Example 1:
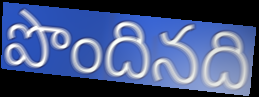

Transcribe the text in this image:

పొందినది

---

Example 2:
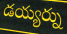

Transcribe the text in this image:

డయ్యర్ను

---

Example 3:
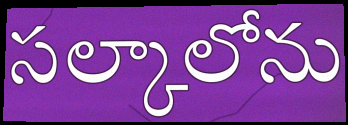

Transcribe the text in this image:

సల్కాలోను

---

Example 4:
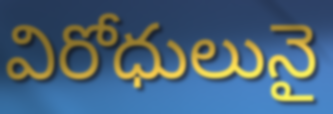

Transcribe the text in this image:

విరోధులునై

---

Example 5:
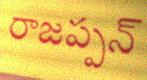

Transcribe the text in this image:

రాజప్పన్